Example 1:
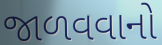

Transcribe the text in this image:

જાળવવાનો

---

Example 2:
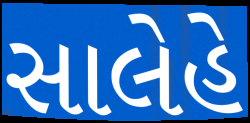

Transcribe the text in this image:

સાલેહે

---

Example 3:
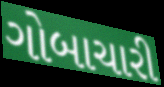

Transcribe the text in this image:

ગોબાચારી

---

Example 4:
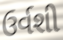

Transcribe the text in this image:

ઉર્વશી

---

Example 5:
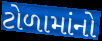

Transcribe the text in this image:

ટોળામાંનો